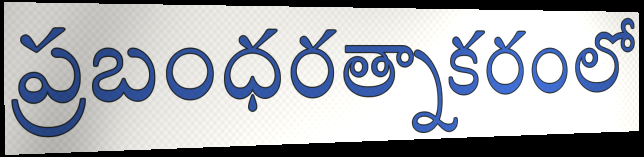
ప్రబంధరత్నాకరంలో